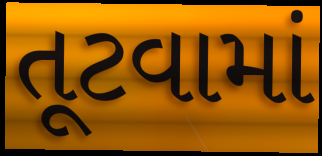
તૂટવામાં